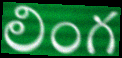
లింగ